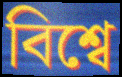
বিশ্বে